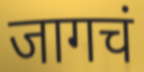
जागचं